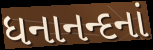
ધનાનન્દનાં